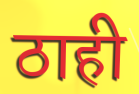
ठाही